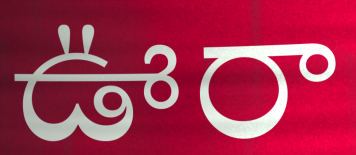
ఊరా